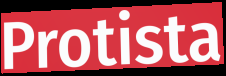
Protista